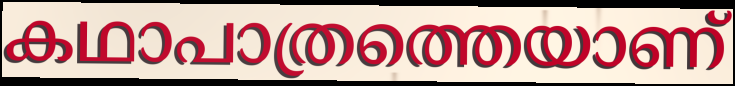
കഥാപാത്രത്തെയാണ്